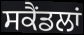
ਸਕੈਂਡਲਾਂ